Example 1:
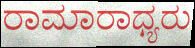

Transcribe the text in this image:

ರಾಮಾರಾಧ್ಯರು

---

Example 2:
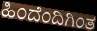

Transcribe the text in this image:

ಹಿಂದೆಂದಿಗಿಂತ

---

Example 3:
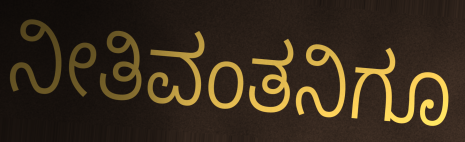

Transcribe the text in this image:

ನೀತಿವಂತನಿಗೂ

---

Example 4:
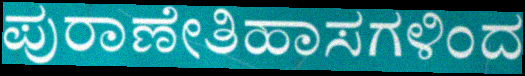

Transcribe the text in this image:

ಪುರಾಣೇತಿಹಾಸಗಳಿಂದ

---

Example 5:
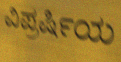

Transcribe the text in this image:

ವಿಪ್ರರ್ಷಿಯ